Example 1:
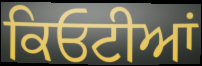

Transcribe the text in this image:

ਕਿਓਟੀਆਂ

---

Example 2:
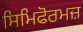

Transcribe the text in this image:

ਸਿਮਿਫੋਰਮਜ਼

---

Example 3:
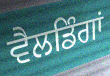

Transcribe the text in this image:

ਵੈਲਡਿੰਗਾਂ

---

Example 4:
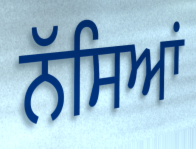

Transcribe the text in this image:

ਨੱਸਿਆਂ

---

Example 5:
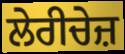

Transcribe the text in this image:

ਲੇਰੀਚੇਜ਼